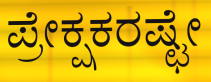
ಪ್ರೇಕ್ಷಕರಷ್ಟೇ